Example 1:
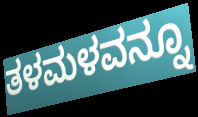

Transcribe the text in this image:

ತಳಮಳವನ್ನೂ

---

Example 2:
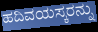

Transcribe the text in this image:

ಹದಿವಯಸ್ಕರನ್ನು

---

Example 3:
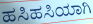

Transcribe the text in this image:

ಹಸಿಹಸಿಯಾಗಿ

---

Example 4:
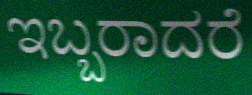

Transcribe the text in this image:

ಇಬ್ಬರಾದರೆ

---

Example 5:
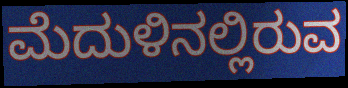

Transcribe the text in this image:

ಮೆದುಳಿನಲ್ಲಿರುವ